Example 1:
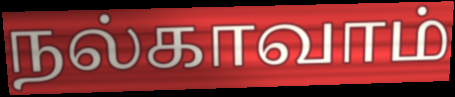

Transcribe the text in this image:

நல்காவாம்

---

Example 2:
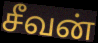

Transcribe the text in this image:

சீவன்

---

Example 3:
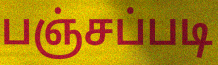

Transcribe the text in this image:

பஞ்சப்படி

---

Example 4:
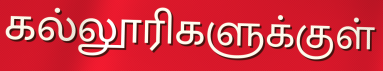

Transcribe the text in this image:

கல்லூரிகளுக்குள்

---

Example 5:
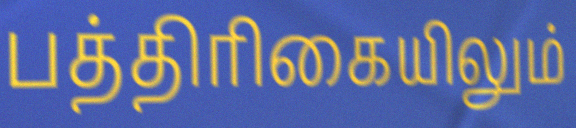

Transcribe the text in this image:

பத்திரிகையிலும்